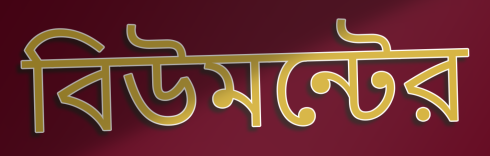
বিউমন্টের